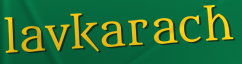
lavkarach